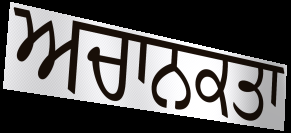
ਅਚਾਨਕਤਾ